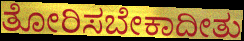
ತೋರಿಸಬೇಕಾದೀತು